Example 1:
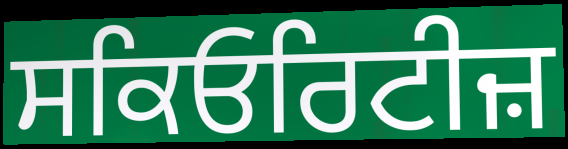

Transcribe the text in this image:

ਸਕਿਓਰਿਟੀਜ਼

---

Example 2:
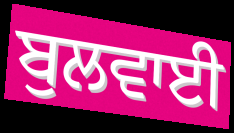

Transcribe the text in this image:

ਬੁਲਵਾਈ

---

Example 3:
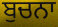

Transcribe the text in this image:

ਬੁਚਨਾ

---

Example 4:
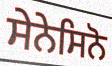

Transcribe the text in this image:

ਸੇਨੇਸਿਨੋ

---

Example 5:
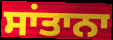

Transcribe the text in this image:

ਸਾਂਤਾਨਾ